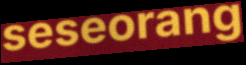
seseorang